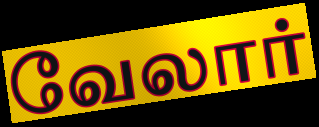
வேலார்